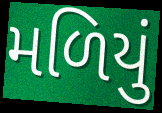
મળિયું